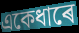
একেধাৰে